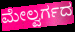
ಮೇಲ್ವರ್ಗದ